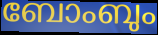
ബോംബും